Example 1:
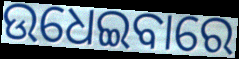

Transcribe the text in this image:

ଉଧେଇବାରେ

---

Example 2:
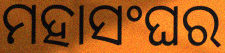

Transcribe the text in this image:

ମହାସଂଘର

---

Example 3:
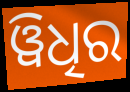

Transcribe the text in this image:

ୱିଧିର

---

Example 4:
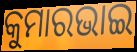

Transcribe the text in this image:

କୁମାରଭାଇ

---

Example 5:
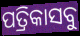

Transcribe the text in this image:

ପତ୍ରିକାସବୁ